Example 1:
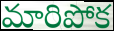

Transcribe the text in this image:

మారిపోక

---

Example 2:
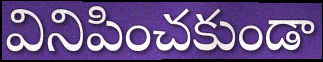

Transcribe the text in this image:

వినిపించకుండా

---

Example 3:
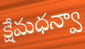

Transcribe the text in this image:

క్షేమధన్వా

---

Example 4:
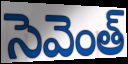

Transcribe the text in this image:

సెవెంత్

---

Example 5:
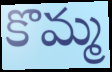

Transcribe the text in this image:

కొమ్మ